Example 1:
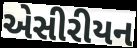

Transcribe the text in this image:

એસીરીયન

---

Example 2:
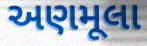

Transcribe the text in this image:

અણમૂલા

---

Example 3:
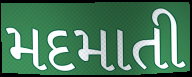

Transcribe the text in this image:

મદમાતી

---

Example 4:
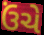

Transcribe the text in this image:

ઉંચે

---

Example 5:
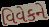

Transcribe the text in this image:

વિવેકને